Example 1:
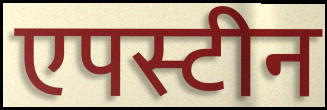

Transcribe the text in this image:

एपस्टीन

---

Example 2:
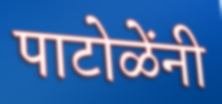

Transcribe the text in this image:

पाटोळेंनी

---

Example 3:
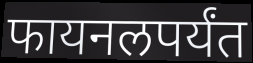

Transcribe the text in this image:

फायनलपर्यंत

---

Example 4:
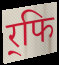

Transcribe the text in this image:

र्फि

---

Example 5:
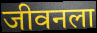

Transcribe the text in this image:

जीवनला